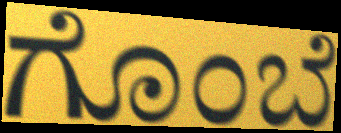
ಗೊಂಬೆ